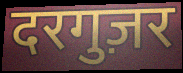
दरगुज़र